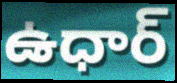
ఉధార్